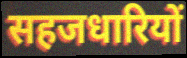
सहजधारियों